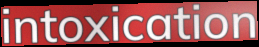
intoxication